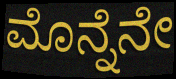
ಮೊನ್ನೆನೇ